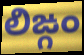
లిఙ్గం